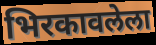
भिरकावलेला